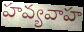
హవ్యవాహ